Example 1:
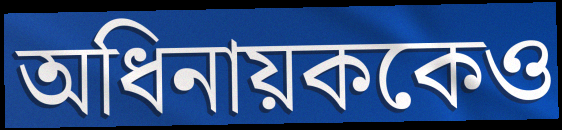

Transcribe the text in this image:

অধিনায়ককেও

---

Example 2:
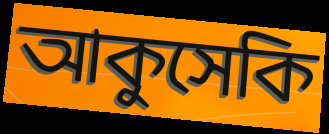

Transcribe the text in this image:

আকুসেকি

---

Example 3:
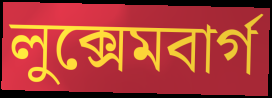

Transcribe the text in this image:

লুক্সেমবার্গ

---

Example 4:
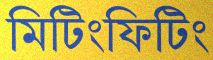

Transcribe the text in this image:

মিটিংফিটিং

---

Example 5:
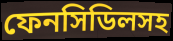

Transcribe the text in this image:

ফেনসিডিলসহ